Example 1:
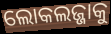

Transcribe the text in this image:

ଲୋକଲଜ୍ଜାକୁ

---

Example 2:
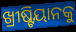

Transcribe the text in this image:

ଖ୍ରୀଷ୍ଟିୟାନକୁ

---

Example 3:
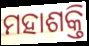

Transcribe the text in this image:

ମହାଶକ୍ତି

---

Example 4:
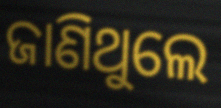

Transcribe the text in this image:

ଜାଣିଥୁଲେ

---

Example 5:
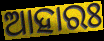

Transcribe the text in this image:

ଆହାରଃ